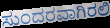
ಸುಂದರವಾಗಿರಲಿ